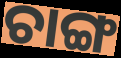
ଚାଙ୍ଗ